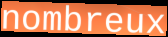
nombreux